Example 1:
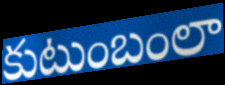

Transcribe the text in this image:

కుటుంబంలా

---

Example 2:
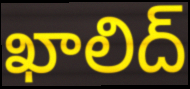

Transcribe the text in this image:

ఖాలిద్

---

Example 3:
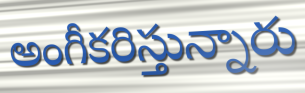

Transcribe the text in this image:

అంగీకరిస్తున్నారు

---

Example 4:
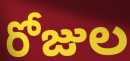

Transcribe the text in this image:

రోజుల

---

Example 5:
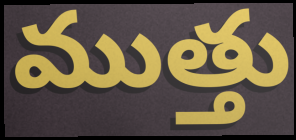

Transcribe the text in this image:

ముత్తు